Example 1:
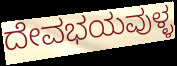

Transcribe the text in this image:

ದೇವಭಯವುಳ್ಳ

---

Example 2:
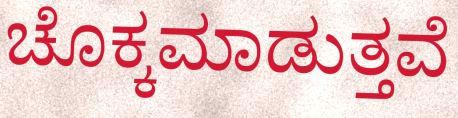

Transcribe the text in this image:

ಚೊಕ್ಕಮಾಡುತ್ತವೆ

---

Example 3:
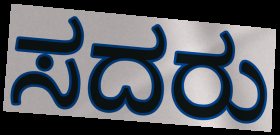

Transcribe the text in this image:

ಸದರು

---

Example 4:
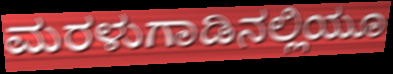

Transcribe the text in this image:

ಮರಳುಗಾಡಿನಲ್ಲಿಯೂ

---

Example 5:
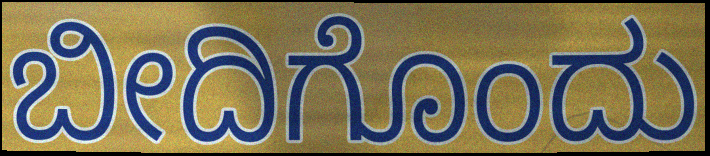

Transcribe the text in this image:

ಬೀದಿಗೊಂದು